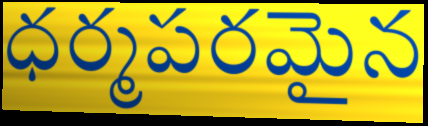
ధర్మపరమైన